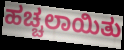
ಹಚ್ಚಲಾಯಿತು